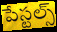
పేస్టల్స్